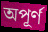
অপূৰ্ণ